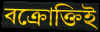
বক্রোক্তিই